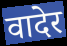
वादेर